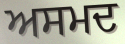
ਅਸਮਦ